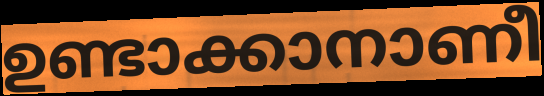
ഉണ്ടാക്കാനാണീ